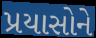
પ્રયાસોને